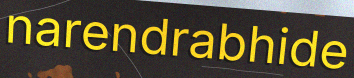
narendrabhide